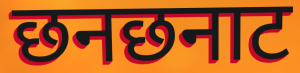
छनछनाट